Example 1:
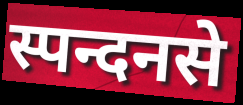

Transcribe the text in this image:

स्पन्दनसे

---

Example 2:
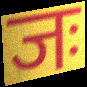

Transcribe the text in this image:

जः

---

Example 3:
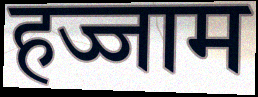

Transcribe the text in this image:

हज्जाम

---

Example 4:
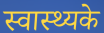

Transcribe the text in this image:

स्वास्थ्यके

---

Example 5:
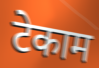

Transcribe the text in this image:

टेकाम